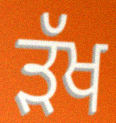
ੜੱਖ